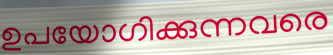
ഉപയോഗിക്കുന്നവരെ